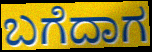
ಬಗೆದಾಗ